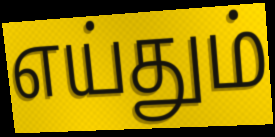
எய்தும்